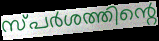
സ്പർശത്തിന്റെ